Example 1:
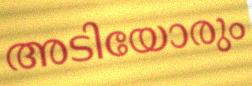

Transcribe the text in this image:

അടിയോരും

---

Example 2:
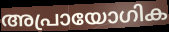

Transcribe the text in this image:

അപ്രായോഗിക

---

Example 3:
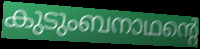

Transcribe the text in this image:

കുടുംബനാഥന്റെ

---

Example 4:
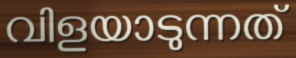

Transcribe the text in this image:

വിളയാടുന്നത്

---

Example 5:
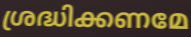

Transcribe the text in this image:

ശ്രദ്ധിക്കണമേ